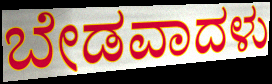
ಬೇಡವಾದಳು